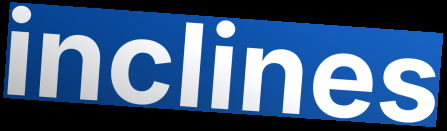
inclines